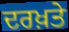
ਦਰਖ਼ਤੇ